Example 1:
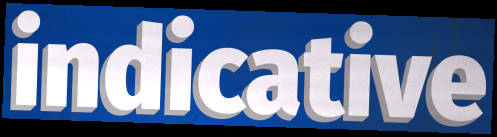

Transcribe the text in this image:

indicative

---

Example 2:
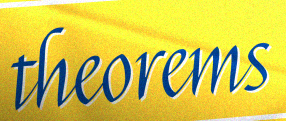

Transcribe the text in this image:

theorems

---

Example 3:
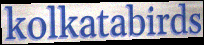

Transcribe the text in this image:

kolkatabirds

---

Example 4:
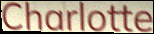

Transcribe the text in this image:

Charlotte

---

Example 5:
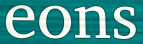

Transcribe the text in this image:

eons